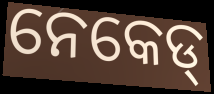
ନେକେଡ୍